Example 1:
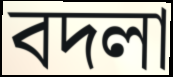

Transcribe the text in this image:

বদলা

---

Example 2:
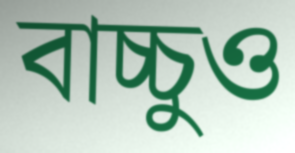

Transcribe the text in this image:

বাচ্চুও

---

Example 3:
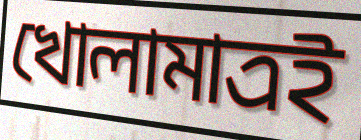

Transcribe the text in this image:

খোলামাত্রই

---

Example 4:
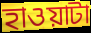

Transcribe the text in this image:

হাওয়াটা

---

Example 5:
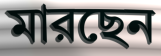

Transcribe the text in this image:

মারছেন